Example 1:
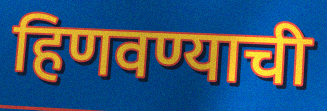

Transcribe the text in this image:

हिणवण्याची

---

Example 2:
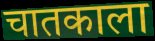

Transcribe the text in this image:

चातकाला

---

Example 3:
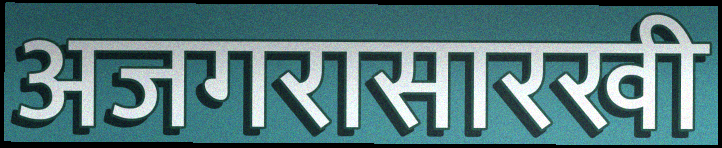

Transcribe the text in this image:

अजगरासारखी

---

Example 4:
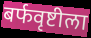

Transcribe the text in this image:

बर्फवृष्टीला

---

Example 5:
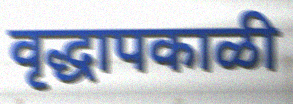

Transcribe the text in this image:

वृद्धापकाळी